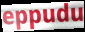
eppudu